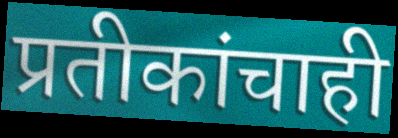
प्रतीकांचाही